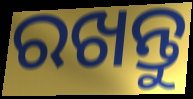
ରଖନ୍ତୁ